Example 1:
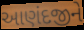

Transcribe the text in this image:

આણંદજીને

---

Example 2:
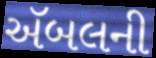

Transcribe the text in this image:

ઍબલની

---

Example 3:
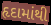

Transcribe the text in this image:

હૃદામાંથી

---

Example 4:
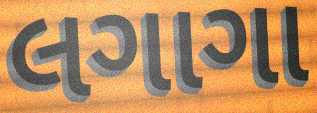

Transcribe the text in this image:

લગાગા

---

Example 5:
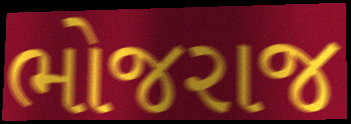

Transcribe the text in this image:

ભોજરાજ